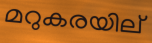
മറുകരയില്